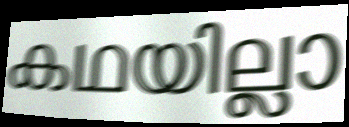
കഥയില്ലാ